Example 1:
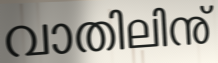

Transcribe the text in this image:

വാതിലിനു്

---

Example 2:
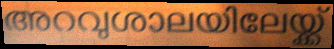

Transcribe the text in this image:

അറവുശാലയിലേയ്ക്ക്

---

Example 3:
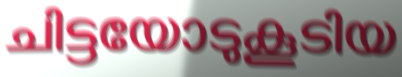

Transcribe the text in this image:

ചിട്ടയോടുകൂടിയ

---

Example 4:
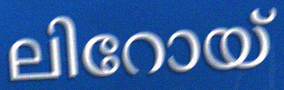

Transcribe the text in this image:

ലിറോയ്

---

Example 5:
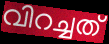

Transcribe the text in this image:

വിറച്ചത്